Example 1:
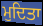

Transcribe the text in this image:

ਮੁਦਿਤਾ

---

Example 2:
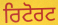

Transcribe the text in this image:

ਰਿਟੋਰਟ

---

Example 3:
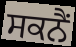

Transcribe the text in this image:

ਸਕਨੈਂ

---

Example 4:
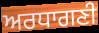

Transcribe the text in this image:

ਅਰਧਾਗਣੀ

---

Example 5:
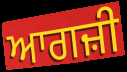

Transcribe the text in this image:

ਆਗਜ਼ੀ